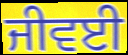
ਜੀਵਈ